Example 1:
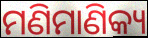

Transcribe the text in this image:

ମଣିମାଣିକ୍ୟ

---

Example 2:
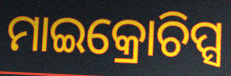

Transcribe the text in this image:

ମାଇକ୍ରୋଚିପ୍ସ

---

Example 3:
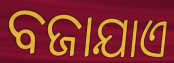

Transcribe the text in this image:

ବଜାଯାଏ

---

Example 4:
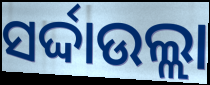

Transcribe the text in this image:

ସର୍ଦ୍ଦାଉଲ୍ଲା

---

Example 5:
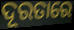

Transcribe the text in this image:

ଦୂରତାରେ